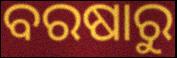
ବରଷାରୁ